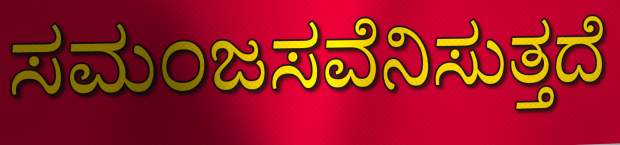
ಸಮಂಜಸವೆನಿಸುತ್ತದೆ